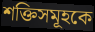
শক্তিসমূহকে